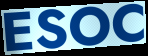
ESOC